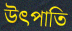
উৎপাতি